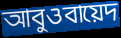
আবুওবায়েদ